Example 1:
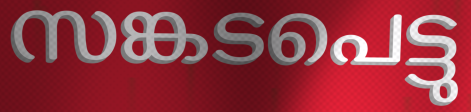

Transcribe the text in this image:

സങ്കടപെട്ടു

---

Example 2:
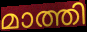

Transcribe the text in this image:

മാത്തി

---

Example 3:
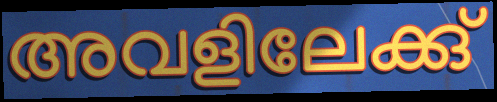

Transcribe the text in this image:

അവളിലേക്കു്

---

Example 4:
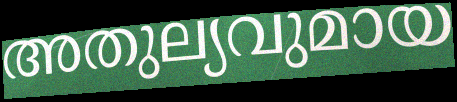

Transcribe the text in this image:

അതുല്യവുമായ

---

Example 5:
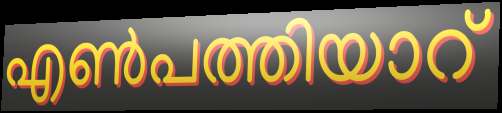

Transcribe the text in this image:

എൺപത്തിയാറ്